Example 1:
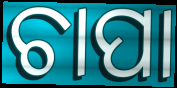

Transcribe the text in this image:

ଚାପା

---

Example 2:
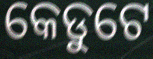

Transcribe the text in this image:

କେଡୁଟେ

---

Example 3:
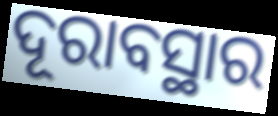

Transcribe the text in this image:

ଦୂରାବସ୍ଥାର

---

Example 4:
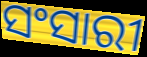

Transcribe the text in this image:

ସଂସାରୀ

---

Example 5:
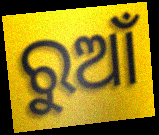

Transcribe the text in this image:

ରୁଆଁ